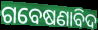
ଗବେଷଣାବିଦ